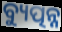
ବ୍ୟୁତ୍ପନ୍ନ